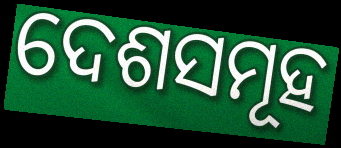
ଦେଶସମୂହ